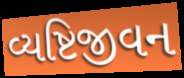
વ્યષ્ટિજીવન